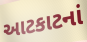
આટકાટનાં